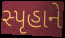
સ્પૃહાને